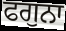
ਫਗੁਨਾ